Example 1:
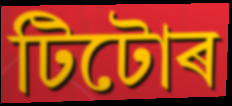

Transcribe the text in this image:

টিটোৰ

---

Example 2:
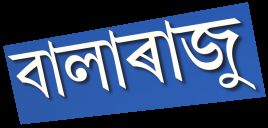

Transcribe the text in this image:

বালাৰাজু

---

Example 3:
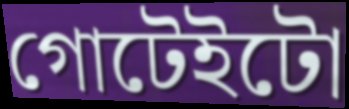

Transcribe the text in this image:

গোটেইটো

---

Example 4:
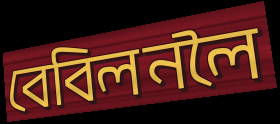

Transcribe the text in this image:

বেবিলনলৈ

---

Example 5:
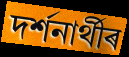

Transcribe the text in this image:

দৰ্শনাৰ্থীৰ